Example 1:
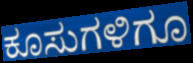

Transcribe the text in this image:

ಕೂಸುಗಳಿಗೂ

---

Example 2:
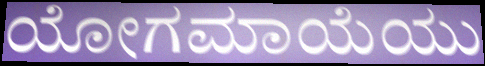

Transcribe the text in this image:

ಯೋಗಮಾಯೆಯು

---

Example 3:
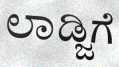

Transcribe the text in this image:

ಲಾಡ್ಜಿಗೆ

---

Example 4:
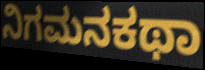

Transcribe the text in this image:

ನಿಗಮನಕಥಾ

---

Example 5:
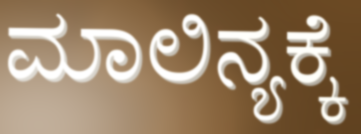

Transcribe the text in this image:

ಮಾಲಿನ್ಯಕ್ಕೆ